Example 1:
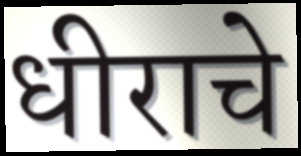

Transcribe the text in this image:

धीराचे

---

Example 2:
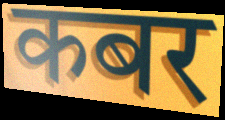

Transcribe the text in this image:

कबर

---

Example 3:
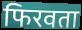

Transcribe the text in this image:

फिरवता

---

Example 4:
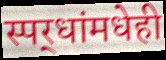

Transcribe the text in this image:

स्पर्धांमधेही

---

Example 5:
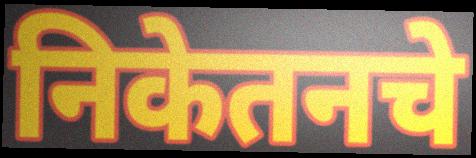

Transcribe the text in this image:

निकेतनचे